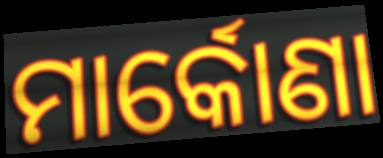
ମାର୍କୋଣା